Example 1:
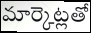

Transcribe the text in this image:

మార్కెట్లతో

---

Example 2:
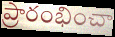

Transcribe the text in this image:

ప్రారంభించా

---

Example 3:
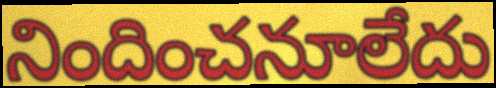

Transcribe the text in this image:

నిందించనూలేదు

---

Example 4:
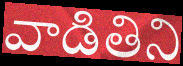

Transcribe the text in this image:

వాడితిని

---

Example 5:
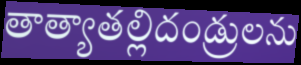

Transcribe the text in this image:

తాత్యాతల్లిదండ్రులను